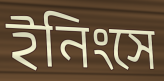
ইনিংসে